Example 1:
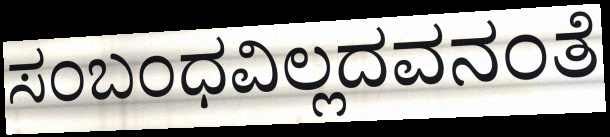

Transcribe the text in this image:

ಸಂಬಂಧವಿಲ್ಲದವನಂತೆ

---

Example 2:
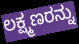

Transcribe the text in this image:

ಲಕ್ಷ್ಮಣರನ್ನು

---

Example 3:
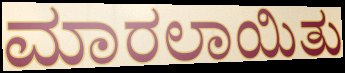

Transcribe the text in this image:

ಮಾರಲಾಯಿತು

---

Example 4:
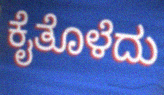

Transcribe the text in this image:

ಕೈತೊಳೆದು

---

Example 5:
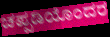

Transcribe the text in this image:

ಚಪ್ಪಡಿಯೊಂದರ